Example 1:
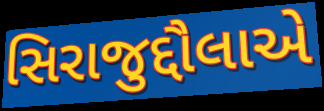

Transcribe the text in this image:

સિરાજુદ્દૌલાએ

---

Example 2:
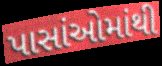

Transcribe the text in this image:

પાસાંઓમાંથી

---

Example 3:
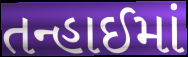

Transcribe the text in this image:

તન્હાઈમાં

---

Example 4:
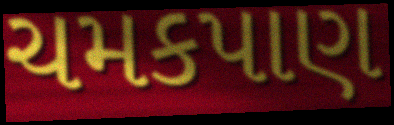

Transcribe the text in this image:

ચમકપાણ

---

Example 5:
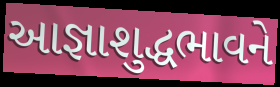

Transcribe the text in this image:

આજ્ઞાશુદ્ધભાવને